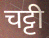
चट्टी